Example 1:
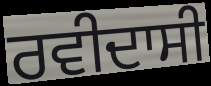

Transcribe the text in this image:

ਰਵੀਦਾਸੀ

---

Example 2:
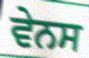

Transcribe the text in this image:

ਵੇਨਸ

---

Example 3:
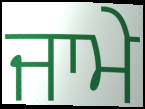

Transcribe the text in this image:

ਜਾਮੇ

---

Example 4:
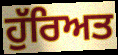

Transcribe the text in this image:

ਹੁੱਰਿਅਤ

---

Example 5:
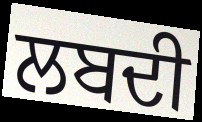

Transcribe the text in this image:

ਲਬਦੀ